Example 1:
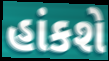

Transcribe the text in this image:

હાંકશે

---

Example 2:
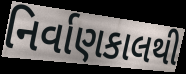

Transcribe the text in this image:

નિર્વાણકાલથી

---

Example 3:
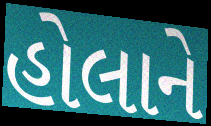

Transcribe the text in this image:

હોલાને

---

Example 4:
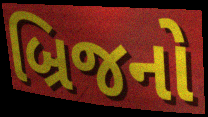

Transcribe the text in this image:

બ્રિજનો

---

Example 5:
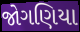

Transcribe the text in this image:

જોગણિયા